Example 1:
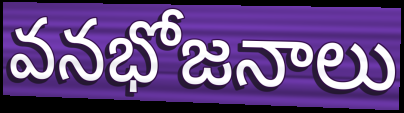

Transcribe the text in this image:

వనభోజనాలు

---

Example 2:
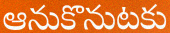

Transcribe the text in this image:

ఆనుకొనుటకు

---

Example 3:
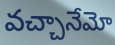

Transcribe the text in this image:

వచ్చానేమో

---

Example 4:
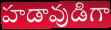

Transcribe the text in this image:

హడావుడిగా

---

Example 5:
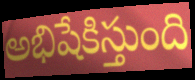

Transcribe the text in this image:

అభిషేకిస్తుంది